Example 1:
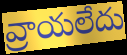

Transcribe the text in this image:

వ్రాయలేదు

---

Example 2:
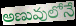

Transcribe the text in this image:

అణువులోనే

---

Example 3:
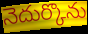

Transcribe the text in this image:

నెదుర్కొను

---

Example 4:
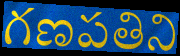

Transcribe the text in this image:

గణపతిని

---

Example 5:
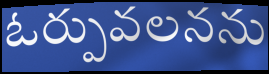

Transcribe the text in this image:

ఓర్పువలనను